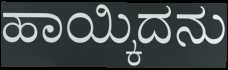
ಹಾಯ್ಕಿದನು